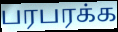
பரபரக்க